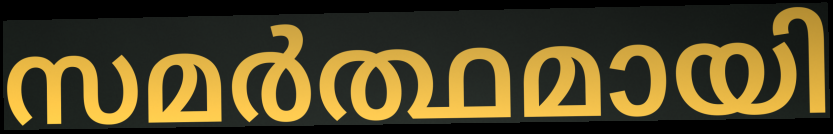
സമർത്ഥമായി